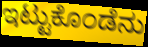
ಇಟ್ಟುಕೊಂಡೆನು